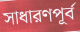
সাধারণপূর্ব